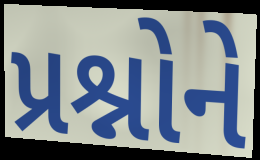
પ્રશ્નોને